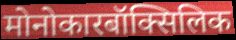
मोनोकारबॉक्सिलिक